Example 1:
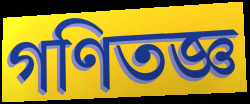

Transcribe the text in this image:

গণিতজ্ঞ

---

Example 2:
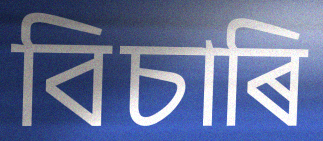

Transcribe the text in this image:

বিচাৰি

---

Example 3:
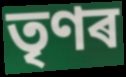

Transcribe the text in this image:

তৃণৰ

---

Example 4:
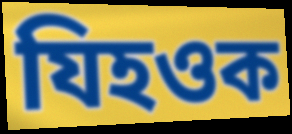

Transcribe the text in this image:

যিহওক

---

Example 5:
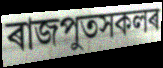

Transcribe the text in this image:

ৰাজপুতসকলৰ